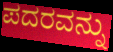
ಪದರವನ್ನು